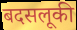
बदसलूकी